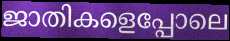
ജാതികളെപ്പോലെ